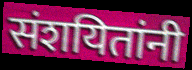
संशयितांनी